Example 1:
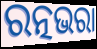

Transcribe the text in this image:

ରତ୍ନଭରା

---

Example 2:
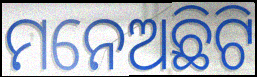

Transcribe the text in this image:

ମନେଅଛିଟି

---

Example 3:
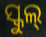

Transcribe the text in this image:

ସ୍କୁଲ୍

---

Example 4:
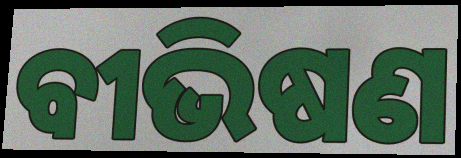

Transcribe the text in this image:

ବୀଭିଷଣ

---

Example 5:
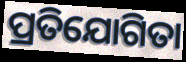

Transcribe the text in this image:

ପ୍ରତିଯୋଗିତା